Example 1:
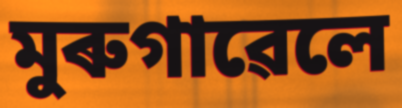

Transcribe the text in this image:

মুৰুগাৱেলে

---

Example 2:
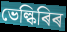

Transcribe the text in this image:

ভেল্কিৰিৰ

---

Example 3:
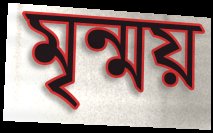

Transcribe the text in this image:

মৃন্ময়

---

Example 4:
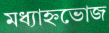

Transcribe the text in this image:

মধ্যাহ্নভোজ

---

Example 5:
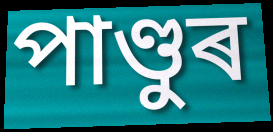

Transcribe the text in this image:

পাণ্ডুৰ